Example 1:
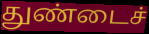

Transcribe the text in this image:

துண்டைச்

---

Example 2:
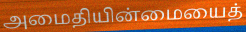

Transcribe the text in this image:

அமைதியின்மையைத்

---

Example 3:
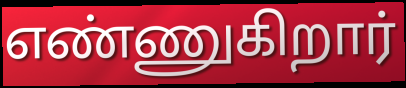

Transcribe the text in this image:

எண்ணுகிறார்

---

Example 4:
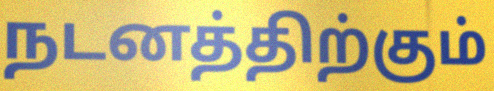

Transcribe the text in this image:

நடனத்திற்கும்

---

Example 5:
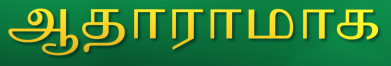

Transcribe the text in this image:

ஆதாராமாக